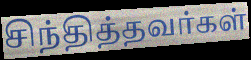
சிந்தித்தவர்கள்